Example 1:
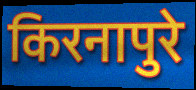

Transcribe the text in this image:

किरनापुरे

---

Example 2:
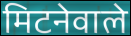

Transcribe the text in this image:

मिटनेवाले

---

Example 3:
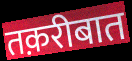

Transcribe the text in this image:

तक़रीबात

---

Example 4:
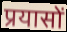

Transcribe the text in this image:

प्रयासों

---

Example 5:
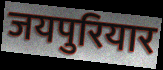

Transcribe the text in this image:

जयपुरियार